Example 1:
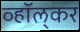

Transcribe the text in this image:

व्हॉल्कर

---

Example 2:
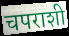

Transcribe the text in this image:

चपराशी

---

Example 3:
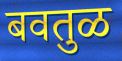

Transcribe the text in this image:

बवतुळ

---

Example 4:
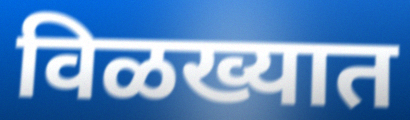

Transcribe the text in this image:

विळख्यात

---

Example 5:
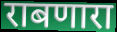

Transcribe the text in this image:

राबणारा